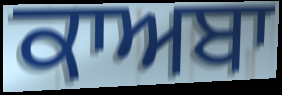
ਕਾਅਬਾ